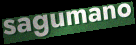
sagumano